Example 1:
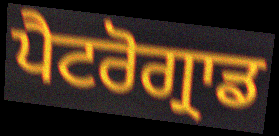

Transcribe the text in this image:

ਪੈਟਰੋਗ੍ਰਾਡ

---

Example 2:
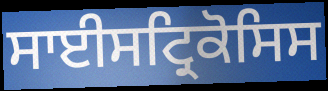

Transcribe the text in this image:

ਸਾਈਸਟ੍ਰਿਕੋਸਿਸ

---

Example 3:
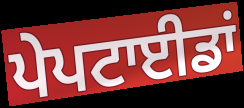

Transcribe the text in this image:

ਪੇਪਟਾਈਡਾਂ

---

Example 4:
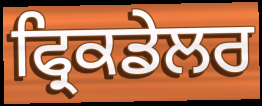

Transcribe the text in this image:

ਫ੍ਰਿਕਡੇਲਰ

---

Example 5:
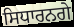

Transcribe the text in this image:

ਸਿਧਾਰਨਗੇ